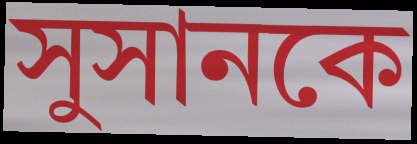
সুসানকে